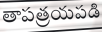
తాపత్రయపడి